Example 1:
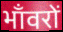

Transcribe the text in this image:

भाँवरों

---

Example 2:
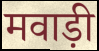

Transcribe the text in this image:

मवाड़ी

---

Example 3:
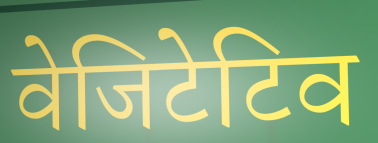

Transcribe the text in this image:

वेजिटेटिव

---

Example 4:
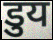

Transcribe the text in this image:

डुय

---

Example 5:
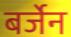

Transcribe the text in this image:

बर्जेन